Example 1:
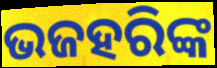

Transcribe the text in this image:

ଭଜହରିଙ୍କ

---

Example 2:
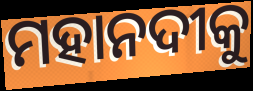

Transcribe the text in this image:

ମହାନଦୀକୁ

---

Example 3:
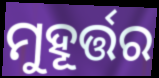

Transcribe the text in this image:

ମୁହୂର୍ତ୍ତର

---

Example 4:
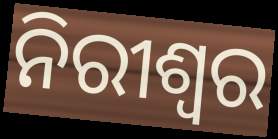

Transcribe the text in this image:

ନିରୀଶ୍ୱର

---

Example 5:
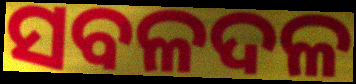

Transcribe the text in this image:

ସବଳଦଳ